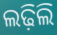
ଲଢ଼ିଲି